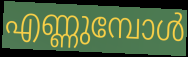
എണ്ണുമ്പോൾ